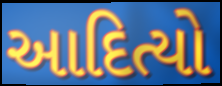
આદિત્યો